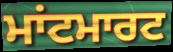
ਮਾਂਟਮਾਰਟ